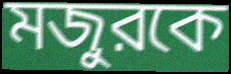
মজুরকে